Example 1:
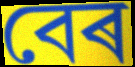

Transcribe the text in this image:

বেৰ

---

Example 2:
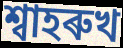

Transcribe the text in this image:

শ্বাহৰুখ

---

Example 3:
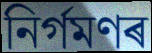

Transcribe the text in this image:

নিৰ্গমণৰ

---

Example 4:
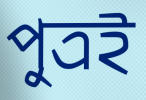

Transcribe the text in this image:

পুত্ৰই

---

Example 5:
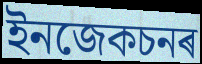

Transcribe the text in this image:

ইনজেকচনৰ